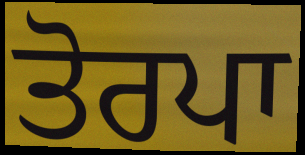
ਤੋਰਪਾ